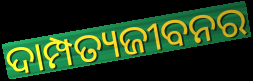
ଦାମ୍ପତ୍ୟଜୀବନର